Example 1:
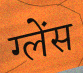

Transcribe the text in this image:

ग्लेंस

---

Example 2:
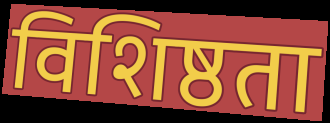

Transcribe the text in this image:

विशिष्ठता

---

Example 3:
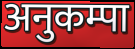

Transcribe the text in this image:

अनुकम्पा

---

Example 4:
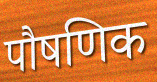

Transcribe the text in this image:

पौषणिक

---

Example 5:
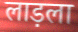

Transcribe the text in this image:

लाड़ला